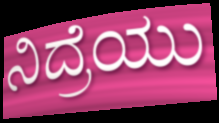
ನಿದ್ರೆಯು